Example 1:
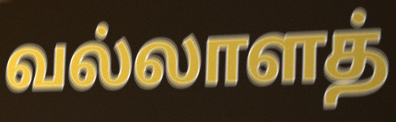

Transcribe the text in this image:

வல்லாளத்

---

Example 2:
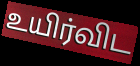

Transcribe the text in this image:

உயிர்விட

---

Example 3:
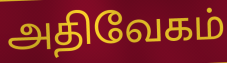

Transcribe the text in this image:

அதிவேகம்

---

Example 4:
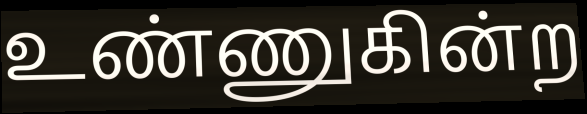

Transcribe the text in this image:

உண்ணுகின்ற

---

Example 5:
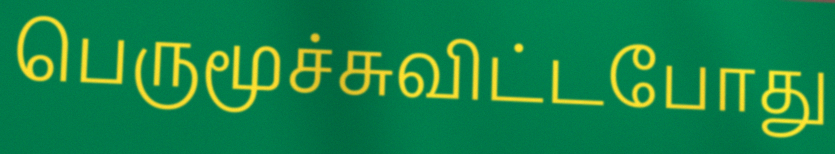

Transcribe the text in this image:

பெருமூச்சுவிட்டபோது